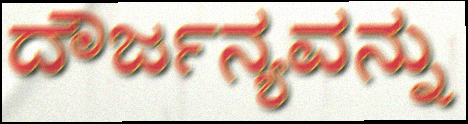
ದೌರ್ಜನ್ಯವನ್ನು